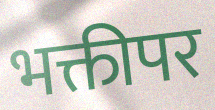
भक्तीपर